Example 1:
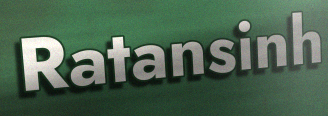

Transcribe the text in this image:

Ratansinh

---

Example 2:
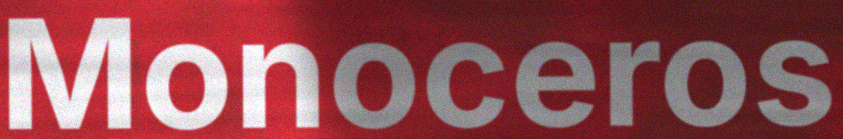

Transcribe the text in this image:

Monoceros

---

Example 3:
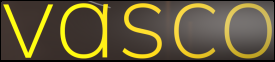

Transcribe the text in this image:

vasco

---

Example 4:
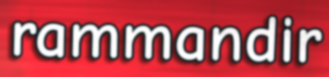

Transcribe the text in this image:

rammandir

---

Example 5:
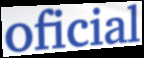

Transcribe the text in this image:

oficial